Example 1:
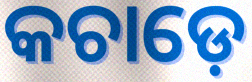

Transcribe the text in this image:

କଚାଡ଼େ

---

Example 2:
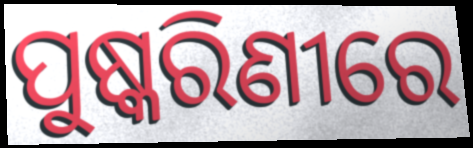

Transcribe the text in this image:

ପୁଷ୍କରିଣୀରେ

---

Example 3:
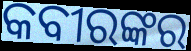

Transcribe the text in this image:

କବୀରଙ୍କର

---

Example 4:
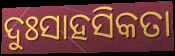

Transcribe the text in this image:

ଦୁଃସାହସିକତା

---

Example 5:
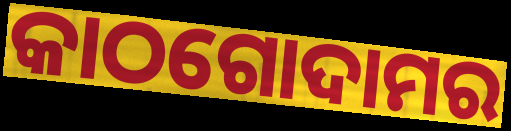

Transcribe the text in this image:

କାଠଗୋଦାମର